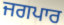
ਜਗਪਾਰ